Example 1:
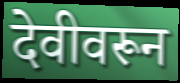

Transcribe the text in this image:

देवीवरून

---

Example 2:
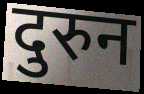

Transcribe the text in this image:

दुरुन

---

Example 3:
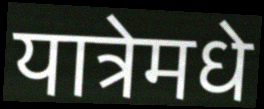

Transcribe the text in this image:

यात्रेमधे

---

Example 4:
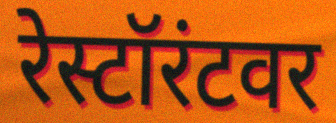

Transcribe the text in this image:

रेस्टॉरंटवर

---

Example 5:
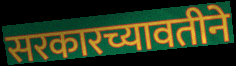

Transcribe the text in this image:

सरकारच्यावतीने